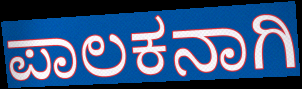
ಪಾಲಕನಾಗಿ